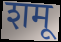
शमू